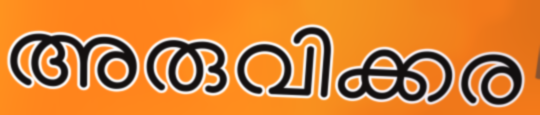
അരുവിക്കര